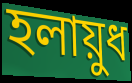
হলায়ুধ